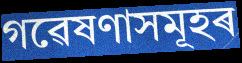
গৱেষণাসমূহৰ